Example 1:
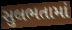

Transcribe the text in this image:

સુલભતામાં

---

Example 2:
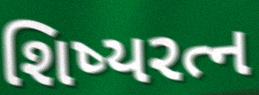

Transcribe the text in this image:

શિષ્યરત્ન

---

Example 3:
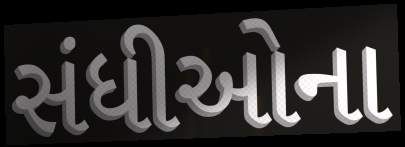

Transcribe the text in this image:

સંધીઓના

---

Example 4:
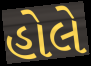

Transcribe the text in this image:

હોલે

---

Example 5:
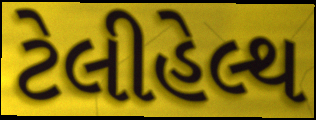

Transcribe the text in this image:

ટેલીહેલ્થ